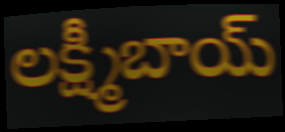
లక్ష్మీబాయ్